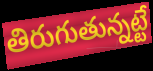
తిరుగుతున్నట్టే